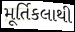
મૂર્તિકલાથી